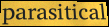
parasitical